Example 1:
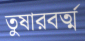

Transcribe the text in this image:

তুষারবর্ত্ম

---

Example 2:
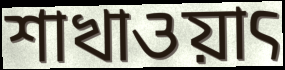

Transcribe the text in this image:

শাখাওয়াৎ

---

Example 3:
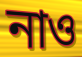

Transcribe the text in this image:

নাও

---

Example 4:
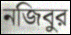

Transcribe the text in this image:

নজিবুর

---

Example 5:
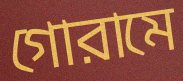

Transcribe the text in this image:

গোরামে